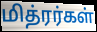
மித்ரர்கள்